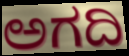
ಅಗದಿ